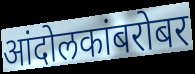
आंदोलकांबरोबर